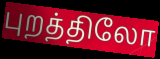
புறத்திலோ